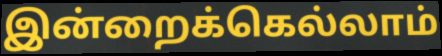
இன்றைக்கெல்லாம்